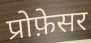
प्रोफ़ेसर